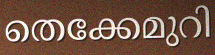
തെക്കേമുറി